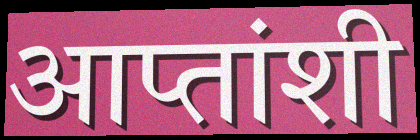
आप्तांशी